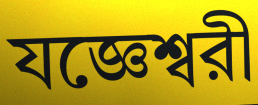
যজ্ঞেশ্বরী